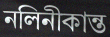
নলিনীকান্ত